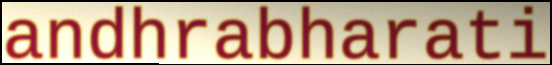
andhrabharati